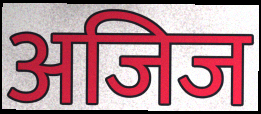
अजिज